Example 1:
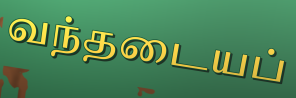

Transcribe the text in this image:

வந்தடையப்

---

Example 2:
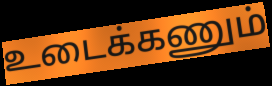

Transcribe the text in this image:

உடைக்கணும்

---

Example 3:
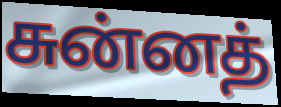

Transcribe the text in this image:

சுன்னத்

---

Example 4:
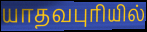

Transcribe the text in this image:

யாதவபுரியில்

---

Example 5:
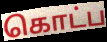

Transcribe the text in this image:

கொட்ப